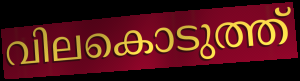
വിലകൊടുത്ത്